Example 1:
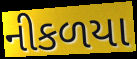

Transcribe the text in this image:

નીકળયા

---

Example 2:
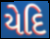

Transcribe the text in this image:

યેદિ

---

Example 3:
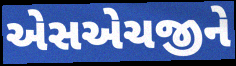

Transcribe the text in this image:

એસએચજીને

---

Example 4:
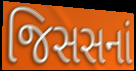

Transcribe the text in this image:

જિસસનાં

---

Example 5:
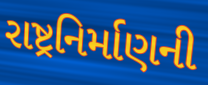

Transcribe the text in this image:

રાષ્ટ્રનિર્માણની